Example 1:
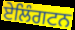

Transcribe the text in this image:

ਏਲਿੰਗਟਨ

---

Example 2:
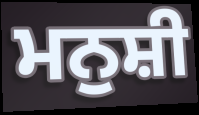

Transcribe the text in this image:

ਮਨੁਸ਼ੀ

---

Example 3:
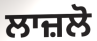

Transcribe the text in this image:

ਲਾਜ਼ਲੋ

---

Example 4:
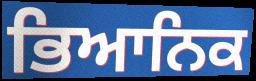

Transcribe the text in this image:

ਭਿਆਨਿਕ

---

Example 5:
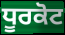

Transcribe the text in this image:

ਧੂਰਕੋਟ